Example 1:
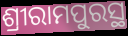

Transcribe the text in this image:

ଶ୍ରୀରାମପୁରସ୍ଥ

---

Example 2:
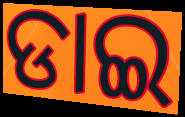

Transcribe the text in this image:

ଡାଇ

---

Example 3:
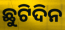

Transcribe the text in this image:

ଛୁଟିଦିନ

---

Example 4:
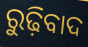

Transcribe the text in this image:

ରୁଢ଼ିବାଦ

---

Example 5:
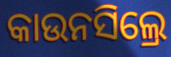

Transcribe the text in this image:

କାଉନସିଲ୍ରେ